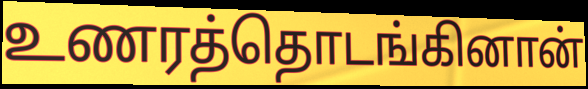
உணரத்தொடங்கினான்